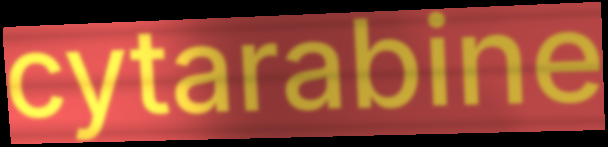
cytarabine